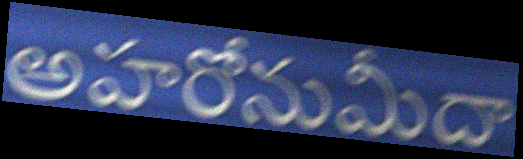
అహరోనుమీదా